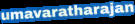
umavaratharajan